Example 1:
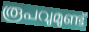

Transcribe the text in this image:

രൂപവുമുണ്ട്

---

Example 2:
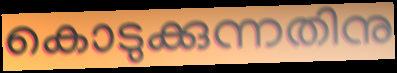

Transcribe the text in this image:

കൊടുക്കുന്നതിനു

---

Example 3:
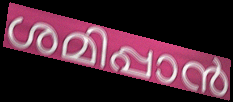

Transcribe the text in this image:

ശമിപ്പാൻ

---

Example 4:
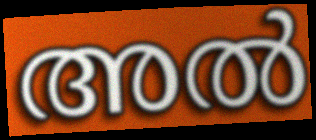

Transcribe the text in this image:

അൽ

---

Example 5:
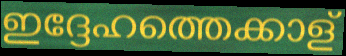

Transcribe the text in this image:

ഇദ്ദേഹത്തെക്കാള്